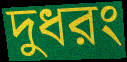
দুধরং